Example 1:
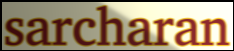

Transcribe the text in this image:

sarcharan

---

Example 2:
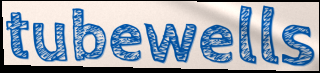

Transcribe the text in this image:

tubewells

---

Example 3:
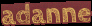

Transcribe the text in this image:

adanne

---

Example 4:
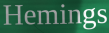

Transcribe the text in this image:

Hemings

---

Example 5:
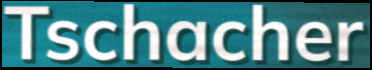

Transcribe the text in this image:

Tschacher